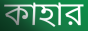
কাহার